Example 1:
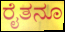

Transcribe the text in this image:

ರೈತನೂ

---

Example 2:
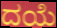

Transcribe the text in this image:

ದಯೆ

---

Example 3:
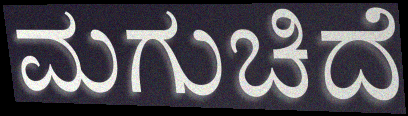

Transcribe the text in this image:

ಮಗುಚಿದೆ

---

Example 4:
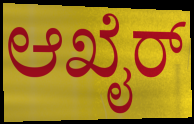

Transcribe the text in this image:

ಆಖೈರ್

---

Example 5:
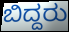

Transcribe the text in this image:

ಬಿದ್ದರು